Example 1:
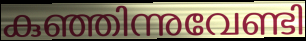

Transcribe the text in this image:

കുഞ്ഞിന്നുവേണ്ടി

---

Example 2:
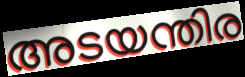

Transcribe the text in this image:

അടയന്തിര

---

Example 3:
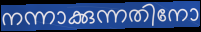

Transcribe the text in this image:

നന്നാക്കുന്നതിനോ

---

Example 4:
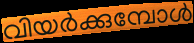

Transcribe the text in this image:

വിയർക്കുമ്പോൾ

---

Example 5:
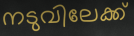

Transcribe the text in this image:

നടുവിലേക്ക്